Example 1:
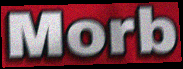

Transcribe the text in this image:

Morb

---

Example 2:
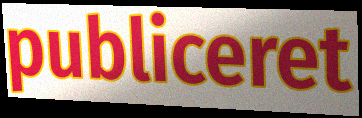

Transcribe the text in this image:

publiceret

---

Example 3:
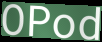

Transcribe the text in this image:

OPod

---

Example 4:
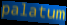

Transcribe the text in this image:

palatum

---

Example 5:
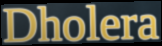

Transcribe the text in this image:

Dholera